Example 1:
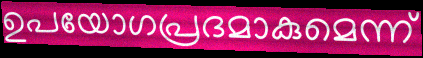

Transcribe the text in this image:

ഉപയോഗപ്രദമാകുമെന്ന്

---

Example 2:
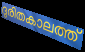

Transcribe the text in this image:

ദുരിതകാലത്ത്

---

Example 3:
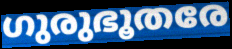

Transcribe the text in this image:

ഗുരുഭൂതരേ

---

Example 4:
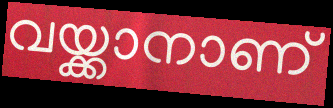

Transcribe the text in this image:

വയ്ക്കാനാണ്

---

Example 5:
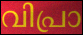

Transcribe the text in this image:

വിപ്രാ